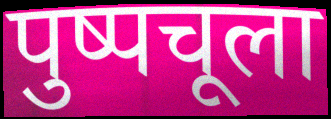
पुष्पचूला